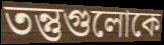
তন্তুগুলোকে